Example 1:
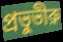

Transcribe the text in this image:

প্রভুভীরু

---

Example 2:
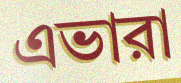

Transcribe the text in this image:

এভারা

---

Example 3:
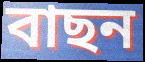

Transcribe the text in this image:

বাছন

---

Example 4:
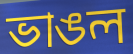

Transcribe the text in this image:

ভাঙল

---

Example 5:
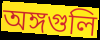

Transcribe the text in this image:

অঙ্গগুলি